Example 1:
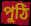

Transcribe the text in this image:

পুঠি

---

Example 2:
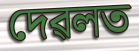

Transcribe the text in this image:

দেৱলত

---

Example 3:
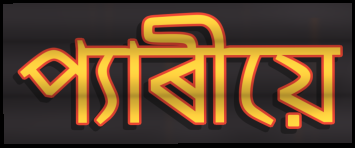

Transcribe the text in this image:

প্যাৰীয়ে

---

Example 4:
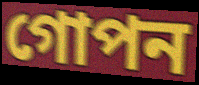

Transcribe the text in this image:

গোপন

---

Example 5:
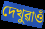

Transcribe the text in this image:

দেখুৱাওঁ